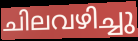
ചിലവഴിച്ചു